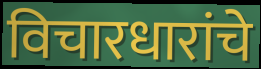
विचारधारांचे